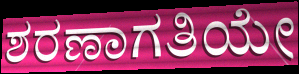
ಶರಣಾಗತಿಯೇ